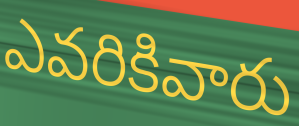
ఎవరికివారు